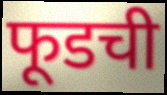
फूडची